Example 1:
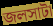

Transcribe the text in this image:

জলসাটা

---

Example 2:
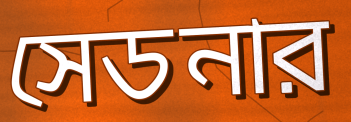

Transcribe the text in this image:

সেডনার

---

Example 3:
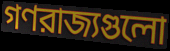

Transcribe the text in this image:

গণরাজ্যগুলো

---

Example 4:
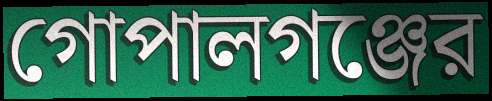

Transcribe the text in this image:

গোপালগঞ্জের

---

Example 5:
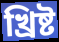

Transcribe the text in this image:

খ্রিষ্ট